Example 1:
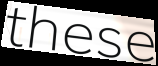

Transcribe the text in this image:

these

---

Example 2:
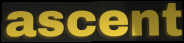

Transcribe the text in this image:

ascent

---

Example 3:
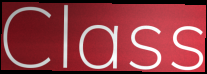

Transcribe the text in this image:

Class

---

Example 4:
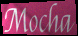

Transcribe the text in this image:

Mocha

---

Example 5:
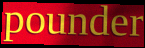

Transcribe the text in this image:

pounder